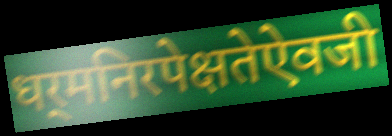
धर्मनिरपेक्षतेऐवजी